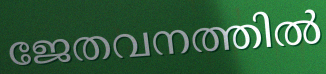
ജേതവനത്തിൽ